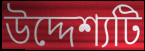
উদ্দেশ্যটি